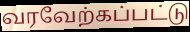
வரவேற்கப்பட்டு